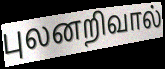
புலனறிவால்